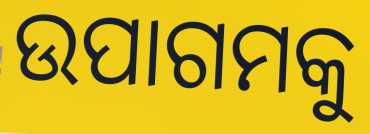
ଉପାଗମକୁ